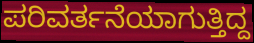
ಪರಿವರ್ತನೆಯಾಗುತ್ತಿದ್ದ